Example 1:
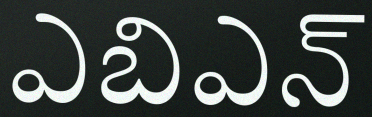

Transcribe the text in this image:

ఎబిఎన్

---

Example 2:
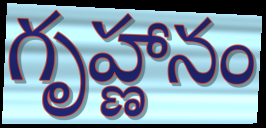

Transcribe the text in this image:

గృహ్ణానం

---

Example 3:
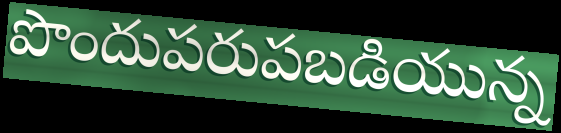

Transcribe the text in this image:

పొందుపరుపబడియున్న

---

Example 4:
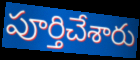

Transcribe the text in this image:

పూర్తిచేశారు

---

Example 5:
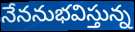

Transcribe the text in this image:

నేననుభవిస్తున్న